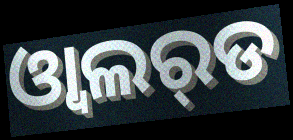
ଓ୍ବାଲର୍‌ଡ